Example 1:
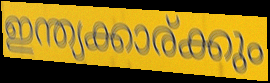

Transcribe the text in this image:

ഇന്ത്യക്കാര്ക്കും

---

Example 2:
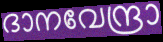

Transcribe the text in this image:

ദാനവേന്ദ്രാ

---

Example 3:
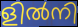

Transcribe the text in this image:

ളിൽനി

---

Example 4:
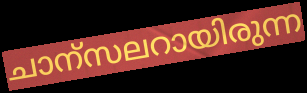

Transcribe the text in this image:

ചാന്സലറായിരുന്ന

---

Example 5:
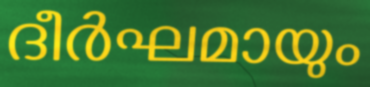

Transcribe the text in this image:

ദീർഘമായും